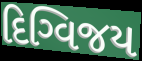
દિગ્વિજય